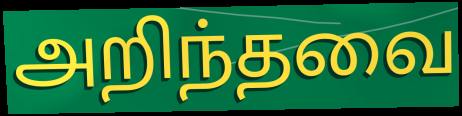
அறிந்தவை